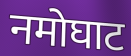
नमोघाट